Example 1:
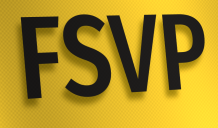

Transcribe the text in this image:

FSVP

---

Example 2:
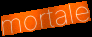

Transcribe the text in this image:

mortale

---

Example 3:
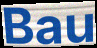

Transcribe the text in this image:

Bau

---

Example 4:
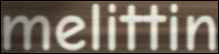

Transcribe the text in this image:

melittin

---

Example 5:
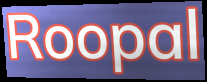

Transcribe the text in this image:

Roopal